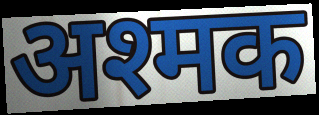
अश्मक